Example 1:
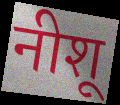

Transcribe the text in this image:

नीशू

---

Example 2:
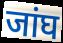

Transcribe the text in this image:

जांघ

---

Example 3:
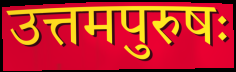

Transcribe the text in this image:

उत्तमपुरुषः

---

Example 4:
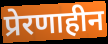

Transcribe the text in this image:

प्रेरणाहीन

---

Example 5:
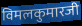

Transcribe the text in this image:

विमलकुमारजी